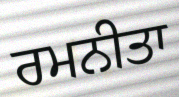
ਰਮਨੀਤਾ